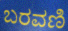
ಬರವಣಿ